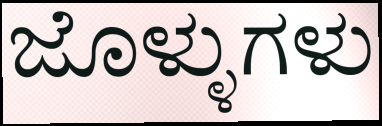
ಜೊಳ್ಳುಗಳು